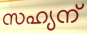
സഹ്യന്